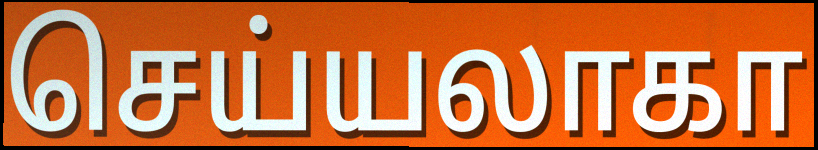
செய்யலாகா